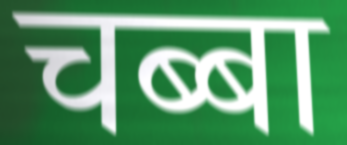
चब्बा